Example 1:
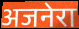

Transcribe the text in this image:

अजनेरा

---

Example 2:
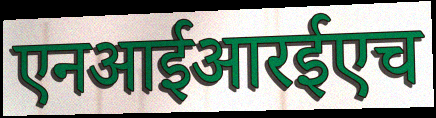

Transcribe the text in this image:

एनआईआरईएच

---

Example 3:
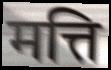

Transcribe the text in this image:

मत्ति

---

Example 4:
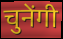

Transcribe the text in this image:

चुनेंगी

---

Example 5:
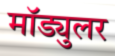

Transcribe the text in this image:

मॉड्युलर